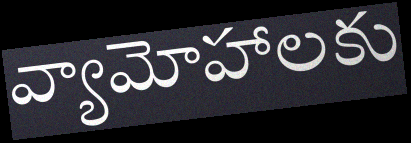
వ్యామోహాలకు